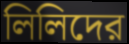
লিলিদের